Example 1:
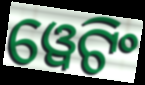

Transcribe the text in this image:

ୱେଟିଂ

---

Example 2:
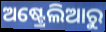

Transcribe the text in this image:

ଅଷ୍ଟ୍ରେଲିଆରୁ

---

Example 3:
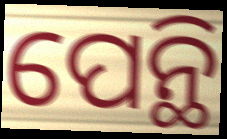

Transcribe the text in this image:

ପେନ୍ଥି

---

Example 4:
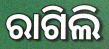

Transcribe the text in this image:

ରାଗିଲି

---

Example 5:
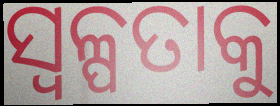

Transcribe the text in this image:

ସ୍ଵଳ୍ପତାକୁ